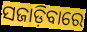
ସଜାଡ଼ିବାରେ